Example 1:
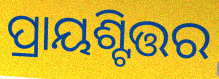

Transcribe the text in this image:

ପ୍ରାୟଶ୍ଟିତ୍ତର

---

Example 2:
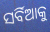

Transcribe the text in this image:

ସର୍ବିଆକୁ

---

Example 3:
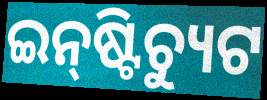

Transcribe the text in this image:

ଇନ୍‌ଷ୍ଟିଚ୍ୟୁଟ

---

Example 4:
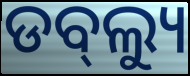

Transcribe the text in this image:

ଡବ୍‌ଲ୍ୟୁ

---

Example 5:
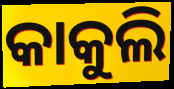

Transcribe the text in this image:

କାକୁଲି